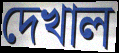
দেখাল